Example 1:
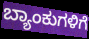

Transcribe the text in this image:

ಬ್ಯಾಂಕುಗಳಿಗೆ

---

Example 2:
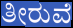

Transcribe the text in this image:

ತೀರುವೆ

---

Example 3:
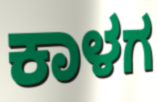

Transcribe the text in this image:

ಕಾಳಗ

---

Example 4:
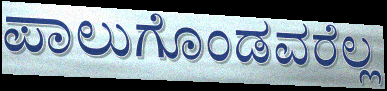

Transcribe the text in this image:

ಪಾಲುಗೊಂಡವರೆಲ್ಲ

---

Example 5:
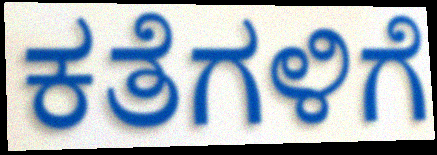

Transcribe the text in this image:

ಕತೆಗಳಿಗೆ